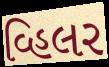
વ્હિલર